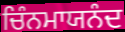
ਚਿੰਨਮਾਯਨੰਦ